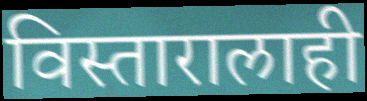
विस्तारालाही